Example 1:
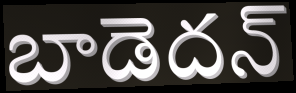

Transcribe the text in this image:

బాడెదన్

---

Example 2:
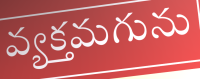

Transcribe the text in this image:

వ్యక్తమగును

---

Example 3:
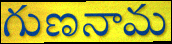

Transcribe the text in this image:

గుణనామ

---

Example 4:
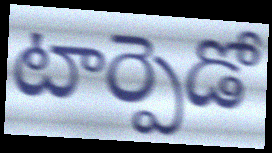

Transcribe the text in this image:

టార్పెడో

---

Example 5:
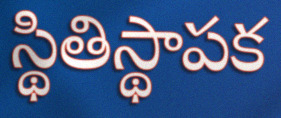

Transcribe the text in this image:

స్థితిస్థాపక